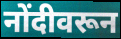
नोंदीवरून